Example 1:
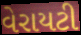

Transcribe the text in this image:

વેરાયટી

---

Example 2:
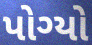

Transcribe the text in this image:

પોગ્યો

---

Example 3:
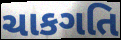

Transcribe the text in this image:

ચાકગતિ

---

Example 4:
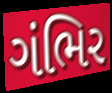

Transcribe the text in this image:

ગંભિર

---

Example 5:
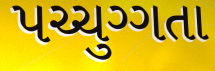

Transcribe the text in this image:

પચ્ચુગ્ગતા